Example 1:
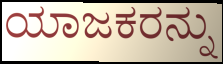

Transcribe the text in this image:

ಯಾಜಕರನ್ನು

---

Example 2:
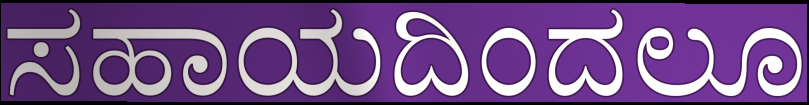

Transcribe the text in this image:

ಸಹಾಯದಿಂದಲೂ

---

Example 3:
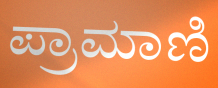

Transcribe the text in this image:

ಪ್ರಾಮಾಣಿ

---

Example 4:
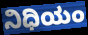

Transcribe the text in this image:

ನಿಧಿಯಂ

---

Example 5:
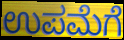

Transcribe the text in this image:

ಉಪಮೆಗೆ